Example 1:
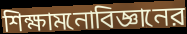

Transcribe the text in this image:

শিক্ষামনোবিজ্ঞানের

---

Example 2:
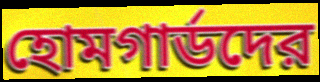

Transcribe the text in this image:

হোমগার্ডদের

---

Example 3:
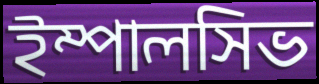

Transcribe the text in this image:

ইম্পালসিভ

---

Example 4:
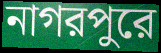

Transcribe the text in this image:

নাগরপুরে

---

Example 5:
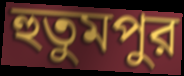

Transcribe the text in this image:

হুতুমপুর